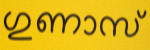
ഗുണാസ്